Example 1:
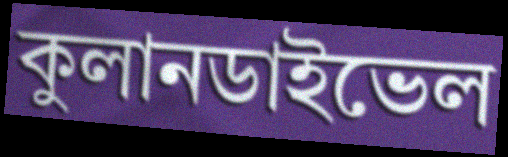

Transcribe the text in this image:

কুলানডাইভেল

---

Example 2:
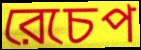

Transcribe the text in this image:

রেচেপ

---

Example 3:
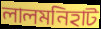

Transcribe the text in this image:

লালমনিহাট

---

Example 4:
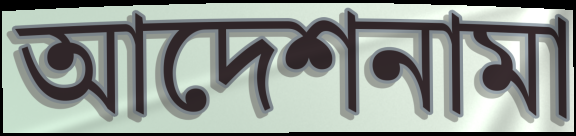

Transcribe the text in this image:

আদেশনামা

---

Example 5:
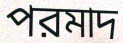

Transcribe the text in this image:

পরমাদ